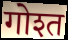
गोश्त